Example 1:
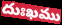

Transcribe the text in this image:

దుఃఖము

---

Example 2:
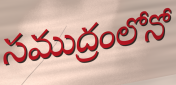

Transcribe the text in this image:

సముద్రంలోనో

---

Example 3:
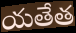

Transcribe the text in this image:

యతేత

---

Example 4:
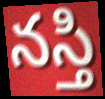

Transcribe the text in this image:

నస్తి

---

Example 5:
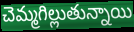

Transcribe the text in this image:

చెమ్మగిల్లుతున్నాయి